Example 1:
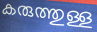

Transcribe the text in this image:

കരുത്തുള്ള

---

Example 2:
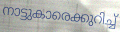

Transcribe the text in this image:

നാട്ടുകാരെക്കുറിച്ച്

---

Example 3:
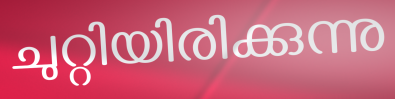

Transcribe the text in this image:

ചുറ്റിയിരിക്കുന്നു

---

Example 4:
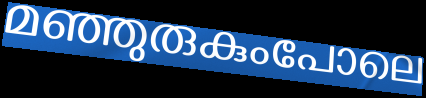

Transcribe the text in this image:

മഞ്ഞുരുകുംപോലെ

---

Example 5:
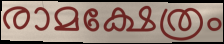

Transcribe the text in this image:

രാമക്ഷേത്രം